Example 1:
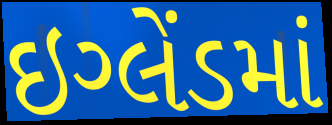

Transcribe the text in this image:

ઇગ્લેંડમાં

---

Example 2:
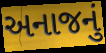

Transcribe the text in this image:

અનાજનું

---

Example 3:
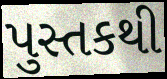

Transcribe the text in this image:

પુસ્તકથી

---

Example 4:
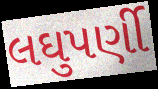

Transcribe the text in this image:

લઘુપર્ણી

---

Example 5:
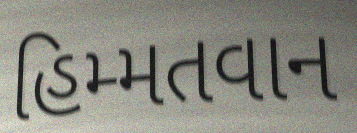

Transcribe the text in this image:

હિમ્મતવાન